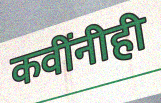
कवींनीही